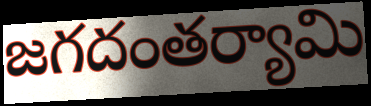
జగదంతర్యామి